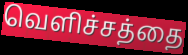
வெளிச்சத்தை